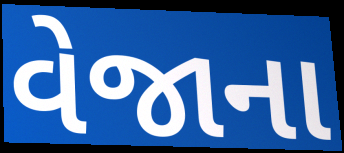
વેજાના